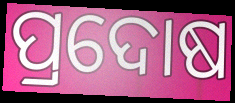
ପ୍ରଦୋଷ